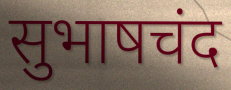
सुभाषचंद